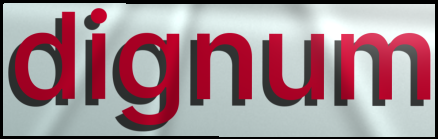
dignum